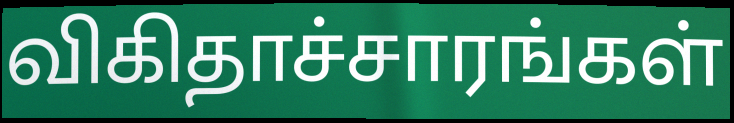
விகிதாச்சாரங்கள்